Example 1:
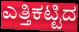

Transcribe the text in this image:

ಎತ್ತಿಕಟ್ಟಿದ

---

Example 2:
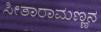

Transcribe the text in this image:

ಸೀತಾರಾಮಣ್ಣನ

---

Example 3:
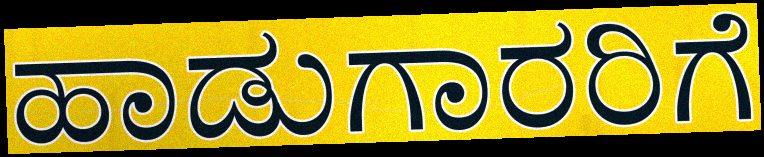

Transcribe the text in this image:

ಹಾಡುಗಾರರಿಗೆ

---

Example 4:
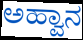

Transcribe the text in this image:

ಅಹ್ವಾನ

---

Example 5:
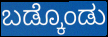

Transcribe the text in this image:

ಬಡ್ಕೊಂಡು